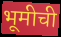
भूमीची